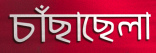
চাঁছাছেলা